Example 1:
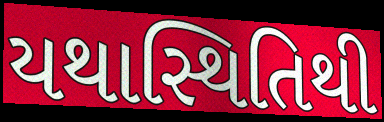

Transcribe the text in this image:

યથાસ્થિતિથી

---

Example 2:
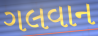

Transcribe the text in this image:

ગલવાન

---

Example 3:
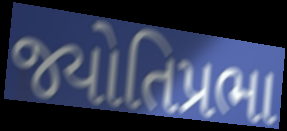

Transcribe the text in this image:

જ્યોતિપ્રભા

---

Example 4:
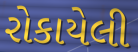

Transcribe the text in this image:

રોકાયેલી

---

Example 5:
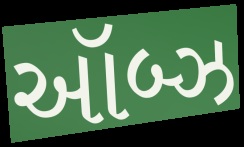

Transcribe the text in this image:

ઑબ્ઝ